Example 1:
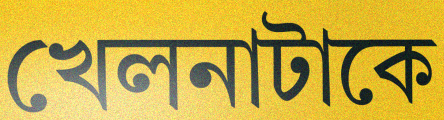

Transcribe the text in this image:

খেলনাটাকে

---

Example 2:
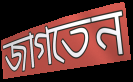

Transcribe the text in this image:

জাগতেন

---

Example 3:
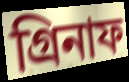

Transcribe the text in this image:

গ্রিনাফ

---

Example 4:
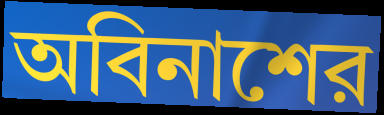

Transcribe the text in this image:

অবিনাশের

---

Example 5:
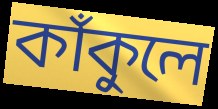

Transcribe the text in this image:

কাঁকুলে